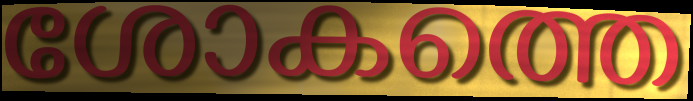
ശോകത്തെ